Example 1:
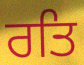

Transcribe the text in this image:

ਰਤਿ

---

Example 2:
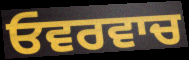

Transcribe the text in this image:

ਓਵਰਵਾਚ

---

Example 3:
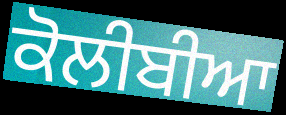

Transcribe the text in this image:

ਕੋਲੀਬੀਆ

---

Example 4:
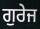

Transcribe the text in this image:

ਗੁਰੇਜ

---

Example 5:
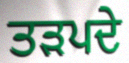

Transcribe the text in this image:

ਤੜਪਦੇ